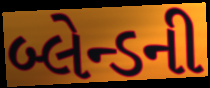
બ્લેન્ડની